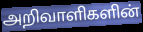
அறிவாளிகளின்